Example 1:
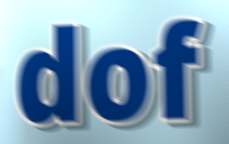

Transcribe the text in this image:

dof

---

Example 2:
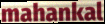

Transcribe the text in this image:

mahankal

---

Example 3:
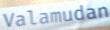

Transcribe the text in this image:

Valamudan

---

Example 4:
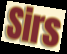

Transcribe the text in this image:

Sirs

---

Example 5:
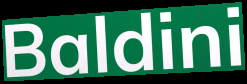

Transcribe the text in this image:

Baldini